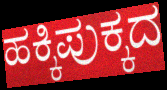
ಹಕ್ಕಿಪುಕ್ಕದ